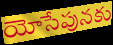
యోసేపునకు